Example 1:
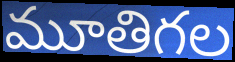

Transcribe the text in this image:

మూతిగల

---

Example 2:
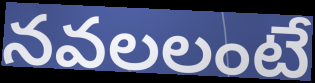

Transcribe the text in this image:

నవలలంటే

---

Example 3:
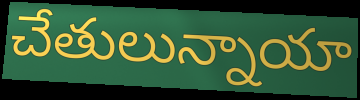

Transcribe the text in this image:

చేతులున్నాయా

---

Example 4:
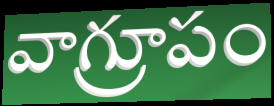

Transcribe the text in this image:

వాగ్రూపం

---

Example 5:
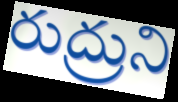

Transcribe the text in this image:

రుద్రుని